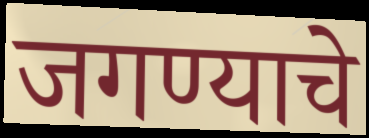
जगण्याचे